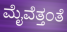
ಮೈವೆತ್ತಂತೆ